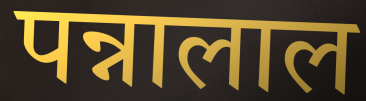
पन्नालाल